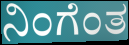
ನಿಂಗೆಂತ